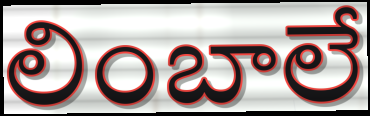
లింబాలే